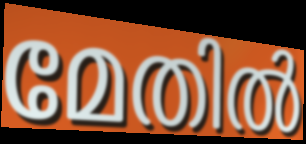
മേതിൽ